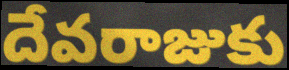
దేవరాజుకు